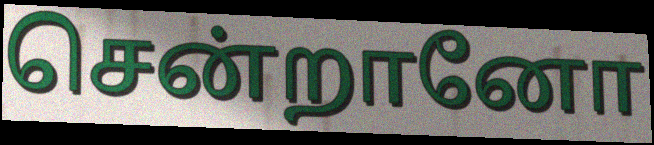
சென்றானோ